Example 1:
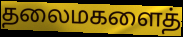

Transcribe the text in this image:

தலைமகளைத்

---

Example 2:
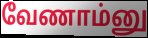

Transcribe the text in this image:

வேணாம்னு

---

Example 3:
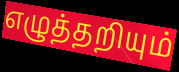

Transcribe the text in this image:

எழுத்தறியும்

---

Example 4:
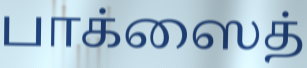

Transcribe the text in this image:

பாக்ஸைத்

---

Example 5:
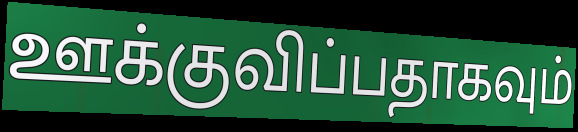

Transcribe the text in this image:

ஊக்குவிப்பதாகவும்